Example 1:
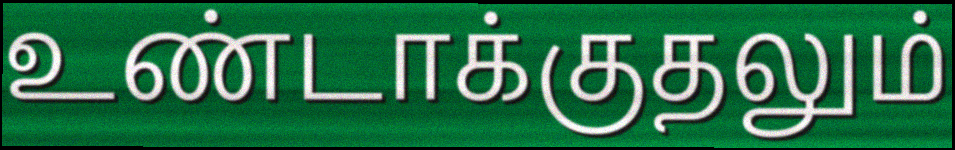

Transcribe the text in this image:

உண்டாக்குதலும்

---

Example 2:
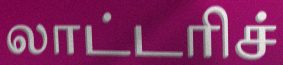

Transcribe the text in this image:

லாட்டரிச்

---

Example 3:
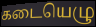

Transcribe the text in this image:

கடையெழு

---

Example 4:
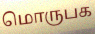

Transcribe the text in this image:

மொருபக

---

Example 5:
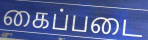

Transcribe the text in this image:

கைப்படை